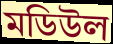
মডিউল